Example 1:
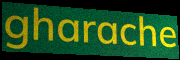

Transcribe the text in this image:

gharache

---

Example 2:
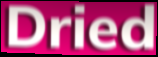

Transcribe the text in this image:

Dried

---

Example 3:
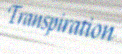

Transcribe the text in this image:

Transpiration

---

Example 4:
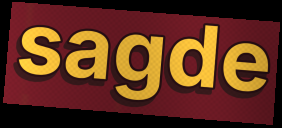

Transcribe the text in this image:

sagde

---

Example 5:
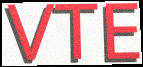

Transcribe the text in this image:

VTE